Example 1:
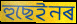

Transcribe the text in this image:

হুছেইনৰ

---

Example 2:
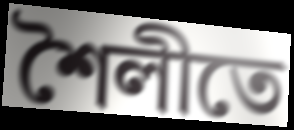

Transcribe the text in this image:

শৈলীতে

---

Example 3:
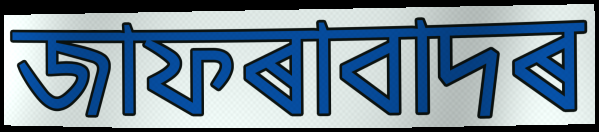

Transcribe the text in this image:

জাফৰাবাদৰ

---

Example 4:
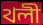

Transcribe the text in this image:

থলী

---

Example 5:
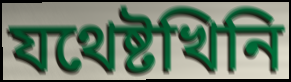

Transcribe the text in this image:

যথেষ্টখিনি